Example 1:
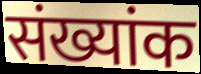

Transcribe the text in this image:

संख्यांक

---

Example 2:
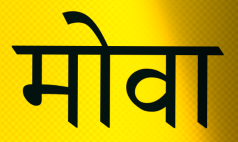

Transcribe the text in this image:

मोवा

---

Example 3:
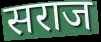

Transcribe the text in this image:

सराज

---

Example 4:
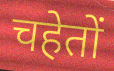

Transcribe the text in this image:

चहेतों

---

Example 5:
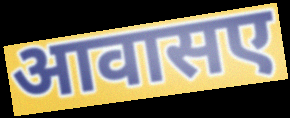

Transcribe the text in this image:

आवासए